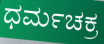
ಧರ್ಮಚಕ್ರ